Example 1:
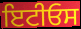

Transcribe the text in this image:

ਇਟੀਓਸ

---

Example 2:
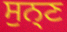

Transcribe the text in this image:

ਸੁਨ੍ਣ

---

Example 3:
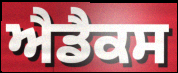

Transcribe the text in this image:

ਐਡੈਕਸ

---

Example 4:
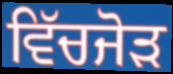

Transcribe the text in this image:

ਵਿੱਚਜੋੜ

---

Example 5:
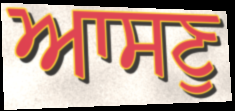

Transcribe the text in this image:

ਆਸਣੁ